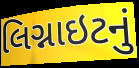
લિગ્નાઇટનું